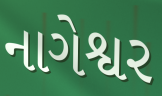
નાગેશ્વર